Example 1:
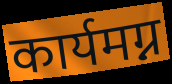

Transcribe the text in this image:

कार्यमग्न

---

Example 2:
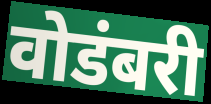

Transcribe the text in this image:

वोडंबरी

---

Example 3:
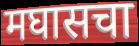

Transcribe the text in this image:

मघासचा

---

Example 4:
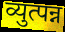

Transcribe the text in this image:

व्युत्पन्न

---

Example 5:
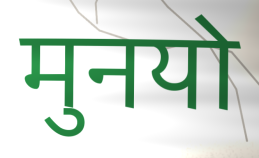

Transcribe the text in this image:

मुनयो